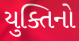
યુક્તિનો